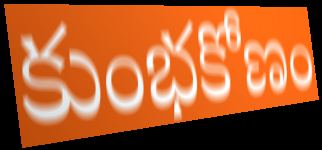
కుంభకోణం